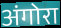
अंगोरा